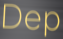
Dep